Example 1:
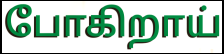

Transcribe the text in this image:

போகிறாய்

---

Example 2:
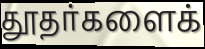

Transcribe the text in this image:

தூதர்களைக்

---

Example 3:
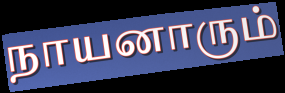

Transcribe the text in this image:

நாயனாரும்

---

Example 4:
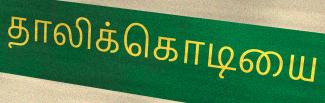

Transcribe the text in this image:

தாலிக்கொடியை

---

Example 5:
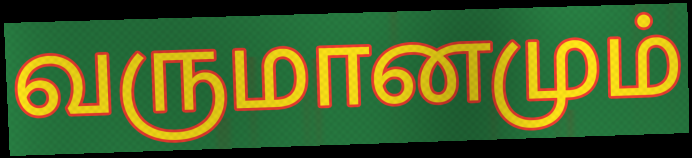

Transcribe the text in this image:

வருமானமும்